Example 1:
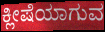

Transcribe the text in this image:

ಕ್ಲೀಷೆಯಾಗುವ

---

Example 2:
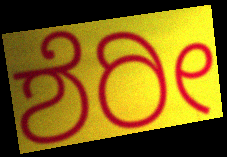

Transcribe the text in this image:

ಶೆರೀ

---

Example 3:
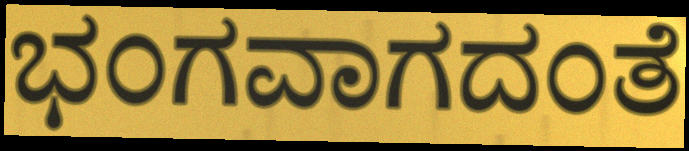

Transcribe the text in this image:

ಭಂಗವಾಗದಂತೆ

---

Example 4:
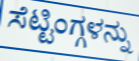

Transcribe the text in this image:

ಸೆಟ್ಟಿಂಗ್ಗಳನ್ನು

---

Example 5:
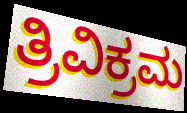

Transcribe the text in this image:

ತ್ರಿವಿಕ್ರಮ